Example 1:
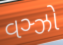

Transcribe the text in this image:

વઞ્ઝો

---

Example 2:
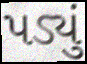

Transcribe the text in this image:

પડ્યું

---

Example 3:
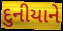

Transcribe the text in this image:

દુનીયાને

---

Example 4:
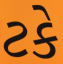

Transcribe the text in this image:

ટકે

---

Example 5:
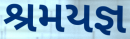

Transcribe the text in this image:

શ્રમયજ્ઞ